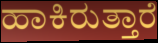
ಹಾಕಿರುತ್ತಾರೆ